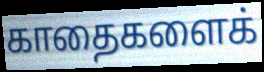
காதைகளைக்